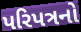
પરિપત્રનો